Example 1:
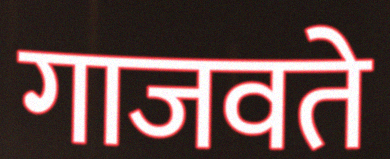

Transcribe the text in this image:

गाजवते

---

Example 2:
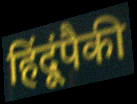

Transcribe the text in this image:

हिंदूंपैकी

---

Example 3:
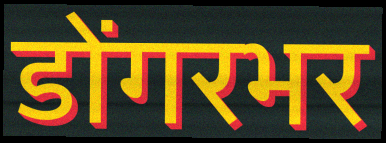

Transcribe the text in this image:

डोंगरभर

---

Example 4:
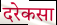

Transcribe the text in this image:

दरेकसा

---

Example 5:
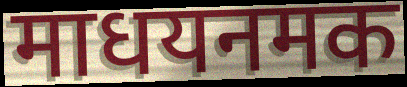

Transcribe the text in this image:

माधयनमक